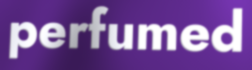
perfumed